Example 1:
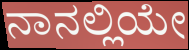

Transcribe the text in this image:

ನಾನಲ್ಲಿಯೇ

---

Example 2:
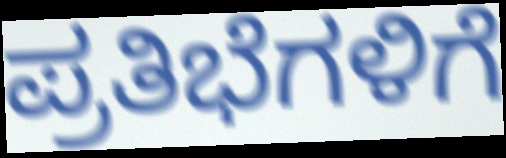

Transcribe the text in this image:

ಪ್ರತಿಭೆಗಳಿಗೆ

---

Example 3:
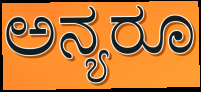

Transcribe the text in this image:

ಅನ್ಯರೂ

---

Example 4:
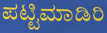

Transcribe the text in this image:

ಪಟ್ಟಿಮಾಡಿರಿ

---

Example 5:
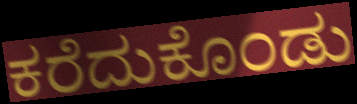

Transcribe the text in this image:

ಕರೆದುಕೊಂಡು